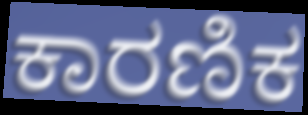
ಕಾರಣಿಕ